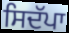
ਸਿਦੱਪਾ